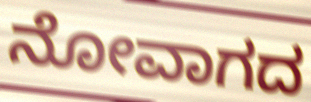
ನೋವಾಗದ